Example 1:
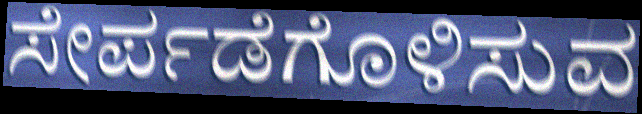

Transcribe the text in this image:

ಸೇರ್ಪಡೆಗೊಳಿಸುವ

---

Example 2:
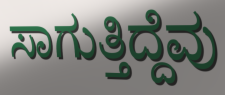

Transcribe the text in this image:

ಸಾಗುತ್ತಿದ್ದೆವು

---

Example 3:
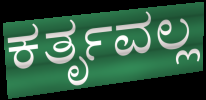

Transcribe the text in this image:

ಕರ್ತೃವಲ್ಲ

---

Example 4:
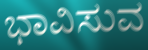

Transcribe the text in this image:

ಭಾವಿಸುವ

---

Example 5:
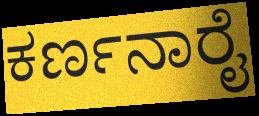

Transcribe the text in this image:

ಕರ್ಣನಾರೈ